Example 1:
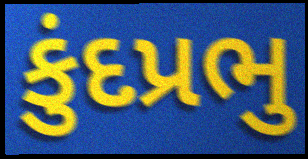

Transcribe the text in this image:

કુંદપ્રભુ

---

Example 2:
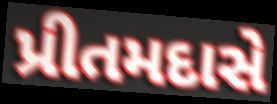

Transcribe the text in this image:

પ્રીતમદાસે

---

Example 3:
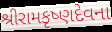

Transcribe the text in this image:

શ્રીરામકૃષ્ણદેવના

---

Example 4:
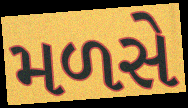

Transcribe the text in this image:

મળસે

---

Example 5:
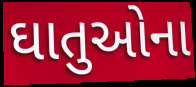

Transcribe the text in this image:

ઘાતુઓના